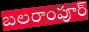
బలరాంపూర్